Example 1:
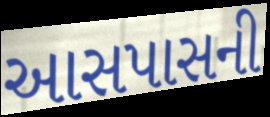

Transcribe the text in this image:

આસપાસની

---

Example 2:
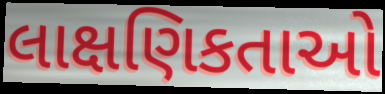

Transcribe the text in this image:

લાક્ષણિકતાઓ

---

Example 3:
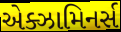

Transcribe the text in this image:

એક્ઝામિનર્સ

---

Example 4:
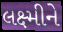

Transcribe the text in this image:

લક્ષ્મીને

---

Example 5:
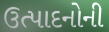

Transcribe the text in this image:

ઉત્પાદનોની